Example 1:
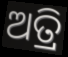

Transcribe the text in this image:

ଅତ୍ରି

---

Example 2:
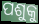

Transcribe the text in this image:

ପଶୁକୁ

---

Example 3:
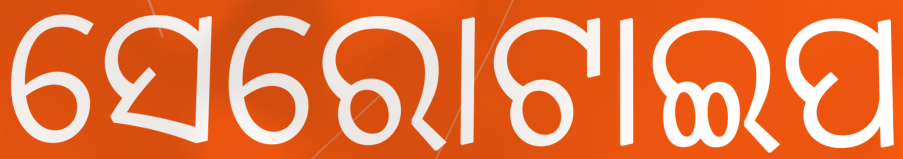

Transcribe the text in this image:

ସେରୋଟାଇପ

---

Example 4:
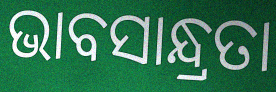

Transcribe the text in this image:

ଭାବସାନ୍ଧ୍ରତା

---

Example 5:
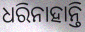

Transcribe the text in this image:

ଧରିନାହାନ୍ତି